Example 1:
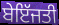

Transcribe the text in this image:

ਬੇਇੱਜਤੀ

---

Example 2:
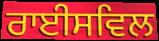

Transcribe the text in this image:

ਰਾਈਸਵਿਲ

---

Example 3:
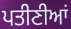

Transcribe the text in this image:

ਪਤੀਣੀਆਂ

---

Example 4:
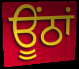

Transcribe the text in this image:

ਊਂਠਾਂ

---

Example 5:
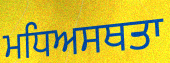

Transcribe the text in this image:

ਮਧਿਅਸਥਤਾ